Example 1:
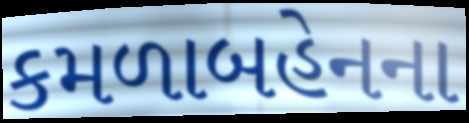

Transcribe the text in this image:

કમળાબહેનના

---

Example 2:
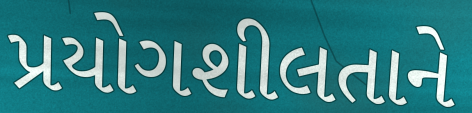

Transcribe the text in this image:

પ્રયોગશીલતાને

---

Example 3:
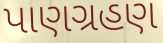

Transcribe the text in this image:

પાણગ્રહણ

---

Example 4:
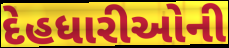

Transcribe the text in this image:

દેહધારીઓની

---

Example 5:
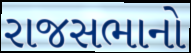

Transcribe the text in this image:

રાજસભાનો